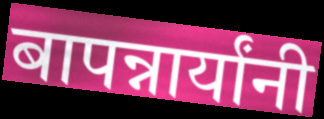
बापन्नार्यांनी